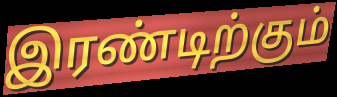
இரண்டிற்கும்